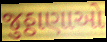
જુઠ્ઠાણાઓ